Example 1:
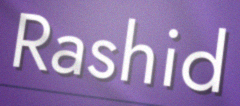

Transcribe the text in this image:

Rashid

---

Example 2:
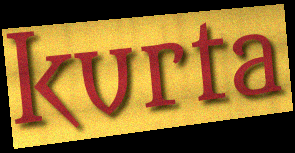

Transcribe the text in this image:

kurta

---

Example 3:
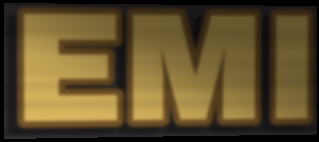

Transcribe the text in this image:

EMI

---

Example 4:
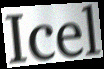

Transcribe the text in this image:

Icel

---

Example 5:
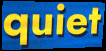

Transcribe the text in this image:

quiet